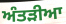
ਅੰਤੜੀਆ